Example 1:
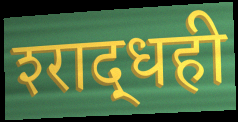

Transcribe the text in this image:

श्राद्धही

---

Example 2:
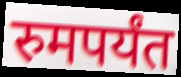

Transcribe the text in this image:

रुमपर्यंत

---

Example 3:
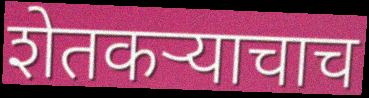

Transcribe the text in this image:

शेतकऱ्याचाच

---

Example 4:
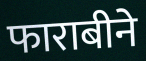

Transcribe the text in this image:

फाराबीने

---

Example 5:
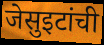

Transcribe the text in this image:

जेसुइटांची